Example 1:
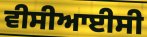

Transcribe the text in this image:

ਵੀਸੀਆਈਸੀ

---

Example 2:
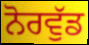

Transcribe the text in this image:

ਨੋਰਵੁੱਡ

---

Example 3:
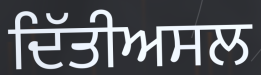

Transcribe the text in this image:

ਦਿੱਤੀਅਸਲ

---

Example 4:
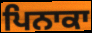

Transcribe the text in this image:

ਪਿਨਾਕਾ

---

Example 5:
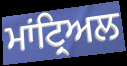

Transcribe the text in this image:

ਮਾਂਟ੍ਰਿਅਲ